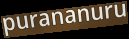
purananuru